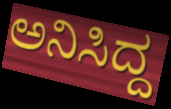
ಅನಿಸಿದ್ದ